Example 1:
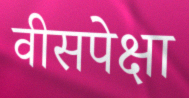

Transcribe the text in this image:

वीसपेक्षा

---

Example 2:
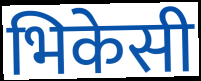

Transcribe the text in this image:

भिकेसी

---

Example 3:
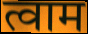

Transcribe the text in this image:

त्वाम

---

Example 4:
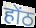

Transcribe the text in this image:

होंठ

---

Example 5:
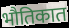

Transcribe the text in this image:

भौतिकात